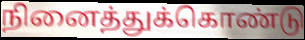
நினைத்துக்கொண்டு